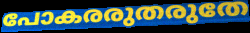
പോകരരുതരുതേ